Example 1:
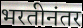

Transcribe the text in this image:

भरतीनंतर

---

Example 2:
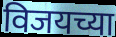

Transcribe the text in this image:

विजयच्या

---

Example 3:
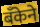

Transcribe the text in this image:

बँकेने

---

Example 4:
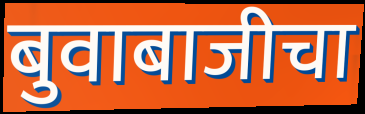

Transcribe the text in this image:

बुवाबाजीचा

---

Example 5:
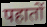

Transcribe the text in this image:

पहातों